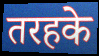
तरहके